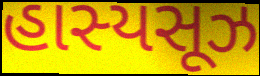
હાસ્યસૂઝ